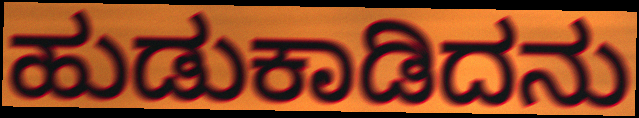
ಹುಡುಕಾಡಿದನು